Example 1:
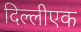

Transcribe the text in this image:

दिल्लीएक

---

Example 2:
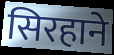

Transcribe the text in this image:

सिरहाने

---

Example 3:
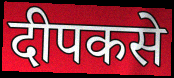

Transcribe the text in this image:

दीपकसे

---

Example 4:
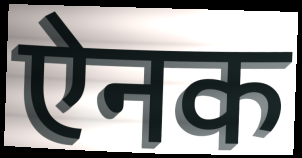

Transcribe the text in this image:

ऐनक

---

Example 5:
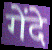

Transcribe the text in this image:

गेंदे